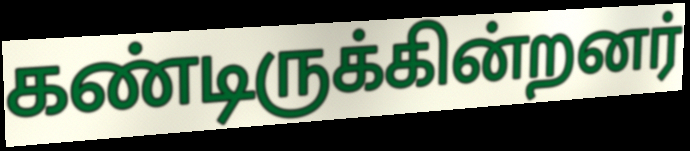
கண்டிருக்கின்றனர்